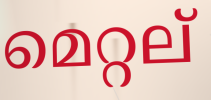
മെറ്റല്